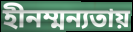
হীনম্মন্যতায়